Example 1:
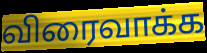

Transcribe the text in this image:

விரைவாக்க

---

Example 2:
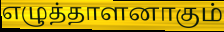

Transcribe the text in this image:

எழுத்தாளனாகும்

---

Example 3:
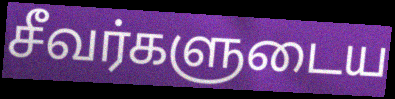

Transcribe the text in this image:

சீவர்களுடைய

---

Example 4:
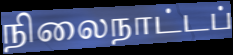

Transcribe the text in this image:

நிலைநாட்டப்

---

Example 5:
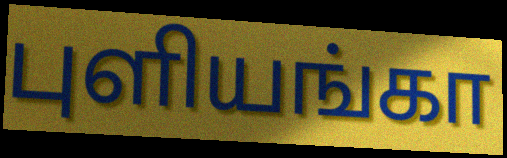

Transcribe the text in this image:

புளியங்கா